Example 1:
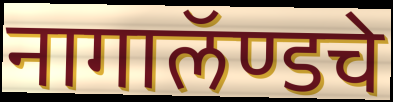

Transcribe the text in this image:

नागालॅण्डचे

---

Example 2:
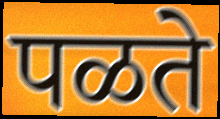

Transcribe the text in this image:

पळते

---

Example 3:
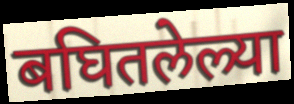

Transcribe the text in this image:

बघितलेल्या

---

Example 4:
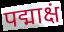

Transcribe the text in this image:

पद्माक्षं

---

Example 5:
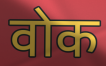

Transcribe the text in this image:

वोक